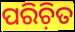
ପରିଚ଼ିତ